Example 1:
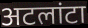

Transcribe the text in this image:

अटलांटा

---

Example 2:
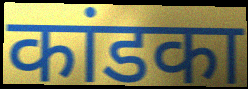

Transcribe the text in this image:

कांडका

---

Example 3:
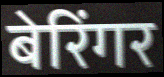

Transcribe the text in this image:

बेरिंगर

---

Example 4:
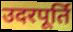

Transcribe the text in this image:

उदरपूर्ति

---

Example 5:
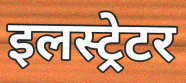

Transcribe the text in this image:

इलस्ट्रेटर